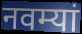
नवम्यां